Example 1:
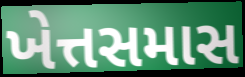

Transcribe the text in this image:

ખેત્તસમાસ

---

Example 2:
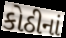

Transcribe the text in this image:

કોઠીનાં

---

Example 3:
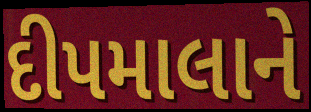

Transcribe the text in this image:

દીપમાલાને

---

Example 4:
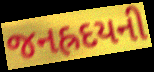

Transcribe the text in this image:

જનહ્રદયની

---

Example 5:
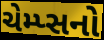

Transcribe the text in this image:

ચેમ્પ્સનો